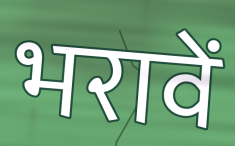
भरावें